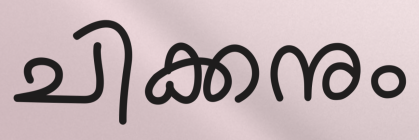
ചിക്കനും